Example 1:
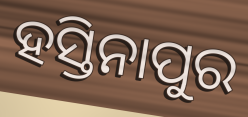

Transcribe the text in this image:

ହସ୍ତିନାପୁର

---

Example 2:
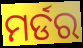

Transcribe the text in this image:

ମର୍ଡର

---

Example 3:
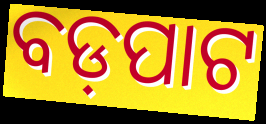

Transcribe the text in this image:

ବଡ଼ପାଟ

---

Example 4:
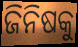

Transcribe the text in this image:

ଜିନିଷକୁ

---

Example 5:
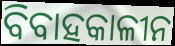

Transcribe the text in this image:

ବିବାହକାଳୀନ